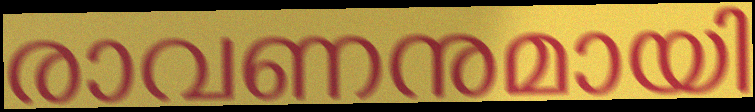
രാവണനുമായി